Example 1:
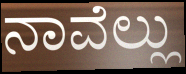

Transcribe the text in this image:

ನಾವೆಲ್ಲು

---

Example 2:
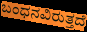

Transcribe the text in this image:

ಬಂಧನವಿರುತ್ತದೆ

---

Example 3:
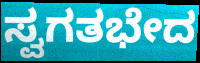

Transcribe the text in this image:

ಸ್ವಗತಭೇದ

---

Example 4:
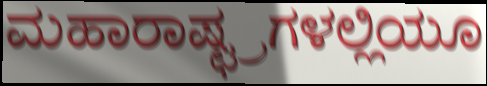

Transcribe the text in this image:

ಮಹಾರಾಷ್ಟ್ರಗಳಲ್ಲಿಯೂ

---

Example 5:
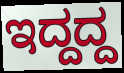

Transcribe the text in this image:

ಇದ್ದದ್ದ